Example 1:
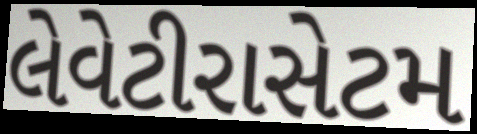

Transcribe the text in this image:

લેવેટીરાસેટમ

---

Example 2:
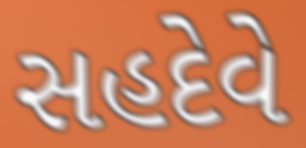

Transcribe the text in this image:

સહદેવે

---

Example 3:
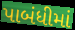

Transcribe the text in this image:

પાબંધીમાં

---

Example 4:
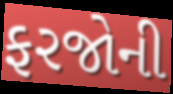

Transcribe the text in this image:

ફરજોની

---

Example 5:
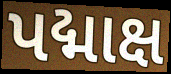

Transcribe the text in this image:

પદ્માક્ષ